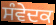
ਸੰਵੇਦਕ